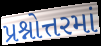
પ્રશ્નોત્તરમાં